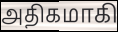
அதிகமாகி